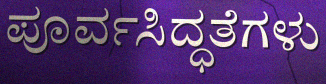
ಪೂರ್ವಸಿದ್ಧತೆಗಳು